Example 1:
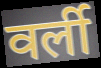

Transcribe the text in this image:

वर्ली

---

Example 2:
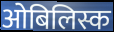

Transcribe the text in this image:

ओबिलिस्क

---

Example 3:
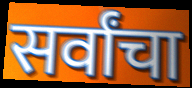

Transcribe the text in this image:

सर्वांचा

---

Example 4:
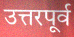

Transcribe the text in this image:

उत्तरपूर्व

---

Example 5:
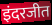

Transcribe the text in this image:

इंदरजीत